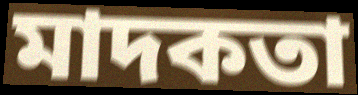
মাদকতা